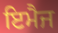
ਇਮੈਜ